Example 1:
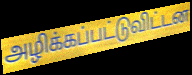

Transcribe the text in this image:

அழிக்கப்பட்டுவிட்டன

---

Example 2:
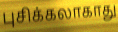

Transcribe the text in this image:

புசிக்கலாகாது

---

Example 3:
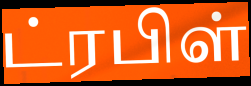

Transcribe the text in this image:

ட்ரபிள்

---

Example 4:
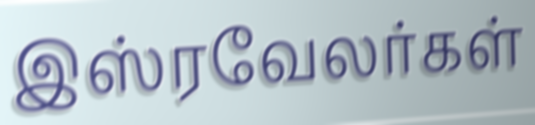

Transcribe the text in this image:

இஸ்ரவேலர்கள்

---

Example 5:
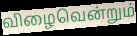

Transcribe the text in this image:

விழைவென்றும்